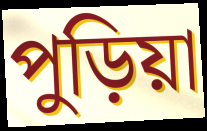
পুড়িয়া